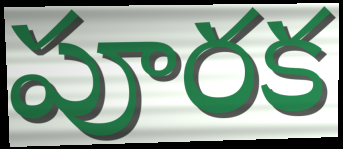
పూరక